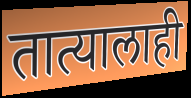
तात्यालाही